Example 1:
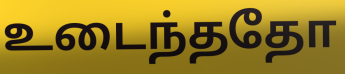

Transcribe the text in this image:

உடைந்ததோ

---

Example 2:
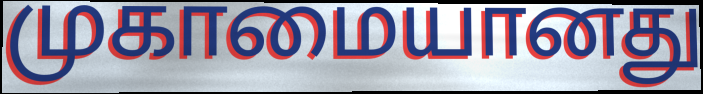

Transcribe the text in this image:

முகாமையானது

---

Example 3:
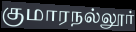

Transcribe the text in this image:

குமாரநல்லூர்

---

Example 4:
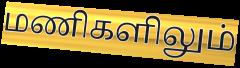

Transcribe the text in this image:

மணிகளிலும்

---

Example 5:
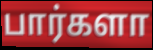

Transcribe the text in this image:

பார்களா